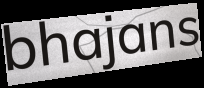
bhajans